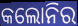
କଲୋନିର